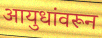
आयुधांवरून